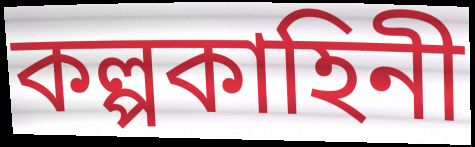
কল্পকাহিনী